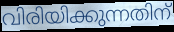
വിരിയിക്കുന്നതിന്